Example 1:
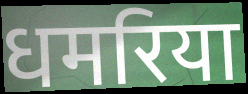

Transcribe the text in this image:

धमरिया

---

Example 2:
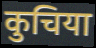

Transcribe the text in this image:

कुचिया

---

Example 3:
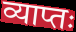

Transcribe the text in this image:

व्याप्तः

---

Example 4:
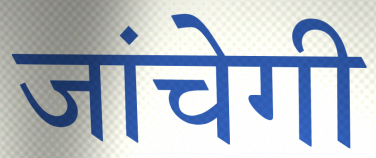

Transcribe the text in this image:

जांचेगी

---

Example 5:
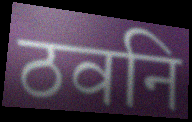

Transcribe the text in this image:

ठवनि